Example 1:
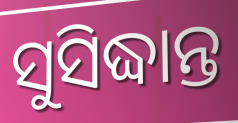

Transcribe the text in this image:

ସୁସିଦ୍ଧାନ୍ତ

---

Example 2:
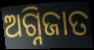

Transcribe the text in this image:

ଅଗ୍ନିଜାତ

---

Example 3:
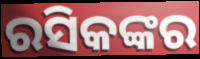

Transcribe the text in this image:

ରସିକଙ୍କର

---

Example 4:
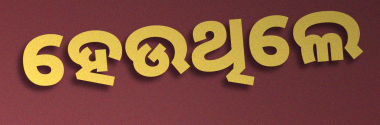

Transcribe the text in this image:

ହେଉଥିଲେ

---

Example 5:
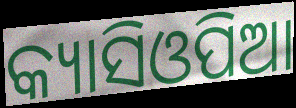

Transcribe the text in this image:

କ୍ୟାସିଓପିଆ